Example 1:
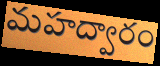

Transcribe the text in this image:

మహద్వారం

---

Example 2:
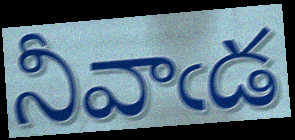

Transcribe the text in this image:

నీవాఁడ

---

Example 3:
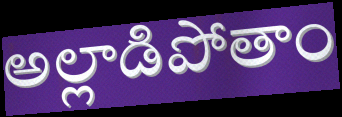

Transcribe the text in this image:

అల్లాడిపోతాం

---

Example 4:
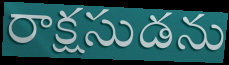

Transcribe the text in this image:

రాక్షసుడను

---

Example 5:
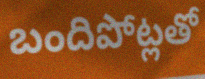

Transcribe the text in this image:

బందిపోట్లతో